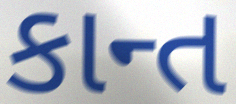
કાન્ત